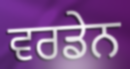
ਵਰਡੇਨ